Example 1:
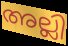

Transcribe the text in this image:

അല്ലി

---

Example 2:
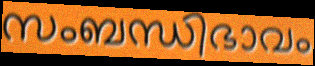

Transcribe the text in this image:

സംബന്ധിഭാവം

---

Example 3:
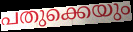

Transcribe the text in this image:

പതുക്കെയും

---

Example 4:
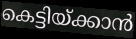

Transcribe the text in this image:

കെട്ടിയ്ക്കാൻ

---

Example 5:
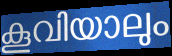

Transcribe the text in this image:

കൂവിയാലും